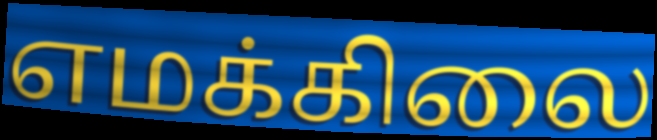
எமக்கிலை